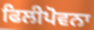
ਫਿਲੀਪੋਵਨਾ